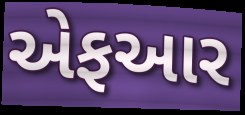
એફઆર